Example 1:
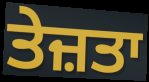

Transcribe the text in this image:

ਤੇਜ਼ਤਾ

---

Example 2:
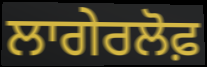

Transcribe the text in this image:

ਲਾਗੇਰਲੋਫ਼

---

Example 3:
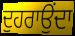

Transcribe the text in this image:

ਦੁਹਰਾਉਂਦਾ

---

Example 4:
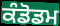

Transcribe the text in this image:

ਕੰਡੋਡਮ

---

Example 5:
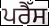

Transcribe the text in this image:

ਪਰੈੱਸ